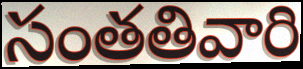
సంతతివారి